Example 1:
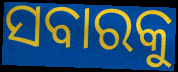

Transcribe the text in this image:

ସବାରକୁ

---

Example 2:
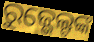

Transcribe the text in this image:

ରୁଜ୍ଭେଲ୍ଟଙ୍କ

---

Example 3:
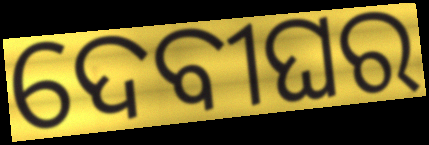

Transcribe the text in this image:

ଦେବୀଘର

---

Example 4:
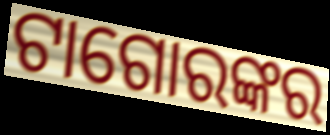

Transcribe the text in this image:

ଟାଗୋରଙ୍କର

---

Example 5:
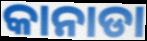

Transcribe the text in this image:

କାନାଡା